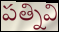
పత్నివి